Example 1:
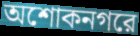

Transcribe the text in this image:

অশোকনগরে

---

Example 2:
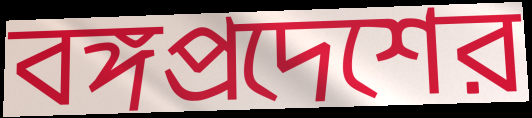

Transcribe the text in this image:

বঙ্গপ্রদেশের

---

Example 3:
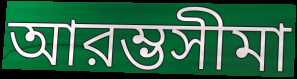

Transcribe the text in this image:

আরম্ভসীমা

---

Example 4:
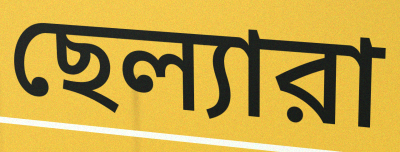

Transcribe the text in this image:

ছেল্যারা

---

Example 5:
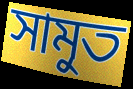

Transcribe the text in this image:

সামুত